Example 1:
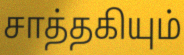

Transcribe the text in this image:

சாத்தகியும்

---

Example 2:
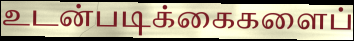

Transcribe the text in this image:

உடன்படிக்கைகளைப்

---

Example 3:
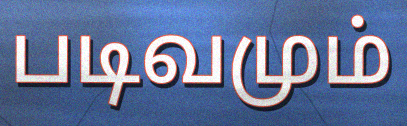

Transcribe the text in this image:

படிவமும்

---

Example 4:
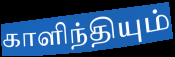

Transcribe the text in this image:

காளிந்தியும்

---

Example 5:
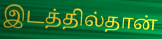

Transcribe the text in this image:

இடத்தில்தான்